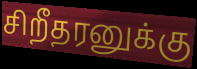
சிறீதரனுக்கு